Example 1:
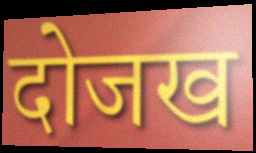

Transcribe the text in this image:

दोजख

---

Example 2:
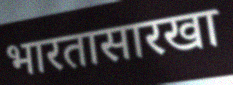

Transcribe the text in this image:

भारतासारखा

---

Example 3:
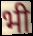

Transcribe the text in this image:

भी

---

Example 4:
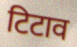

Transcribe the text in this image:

टिटाव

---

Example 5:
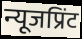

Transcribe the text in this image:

न्यूजप्रिंट